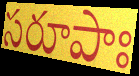
సరూపాః